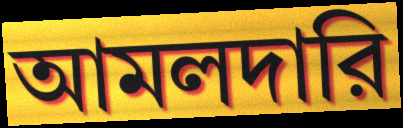
আমলদারি